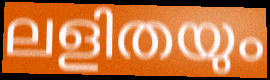
ലളിതയും